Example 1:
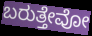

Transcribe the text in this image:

ಬರುತ್ತೇವೋ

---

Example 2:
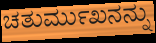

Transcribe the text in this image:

ಚತುರ್ಮುಖನನ್ನು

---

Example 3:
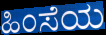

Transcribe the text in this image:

ಹಿಂಸೆಯ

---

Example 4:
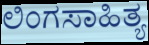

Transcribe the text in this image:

ಲಿಂಗಸಾಹಿತ್ಯ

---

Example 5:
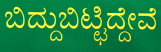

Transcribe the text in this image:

ಬಿದ್ದುಬಿಟ್ಟಿದ್ದೇವೆ